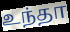
உந்தா